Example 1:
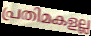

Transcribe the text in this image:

പ്രതിമകളല്ല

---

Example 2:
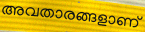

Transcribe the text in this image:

അവതാരങ്ങളാണ്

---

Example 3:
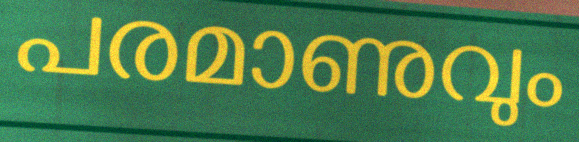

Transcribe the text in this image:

പരമാണുവും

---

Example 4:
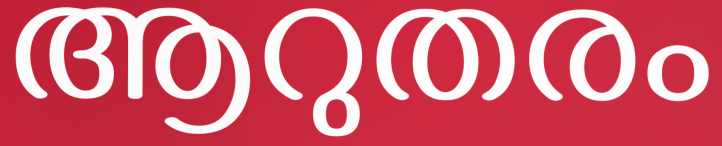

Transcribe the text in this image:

ആറുതരം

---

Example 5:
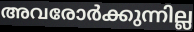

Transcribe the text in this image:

അവരോർക്കുന്നില്ല